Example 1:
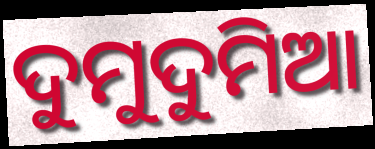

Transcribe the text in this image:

ଦୁମୁଦୁମିଆ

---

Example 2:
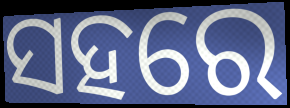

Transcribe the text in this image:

ସହରେ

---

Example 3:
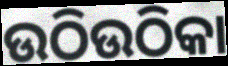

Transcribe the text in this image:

ଉଠିଉଠିକା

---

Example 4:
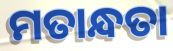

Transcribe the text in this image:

ମତାନ୍ଧତା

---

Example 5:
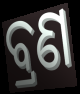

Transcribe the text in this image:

ବ୍ରଣ